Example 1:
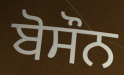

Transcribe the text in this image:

ਬੋਸੌਨ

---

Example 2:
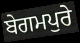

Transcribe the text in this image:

ਬੇਗਮਪੁਰੇ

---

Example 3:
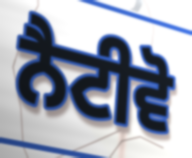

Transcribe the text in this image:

ਨੈਟੀਵੋ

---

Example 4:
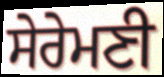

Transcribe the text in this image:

ਸੇਰੇਮਣੀ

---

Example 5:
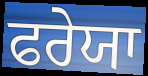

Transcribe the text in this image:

ਫਰੇਯਾ